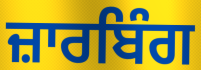
ਜ਼ਾਰਬਿੰਗ